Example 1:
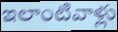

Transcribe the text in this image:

ఇలాంటివాళ్లు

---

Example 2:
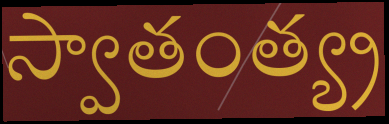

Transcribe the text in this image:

స్వాతంత్య్ర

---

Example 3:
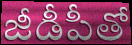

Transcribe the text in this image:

జీడీపీతో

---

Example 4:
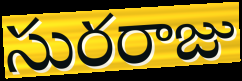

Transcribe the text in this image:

సురరాజు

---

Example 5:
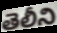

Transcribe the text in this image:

తెలీని